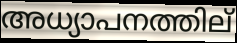
അധ്യാപനത്തില്